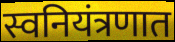
स्वनियंत्रणात